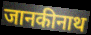
जानकीनाथ